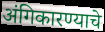
अंगिकारण्याचे